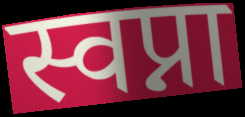
स्वप्ना